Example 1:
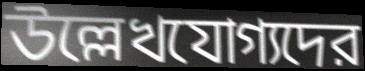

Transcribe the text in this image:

উল্লেখযোগ্যদের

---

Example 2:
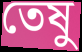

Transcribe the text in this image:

তেষু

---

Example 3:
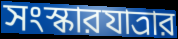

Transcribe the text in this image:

সংস্কারযাত্রার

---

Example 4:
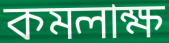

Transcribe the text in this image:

কমলাক্ষ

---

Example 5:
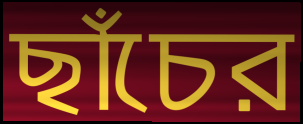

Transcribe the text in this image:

ছাঁচের